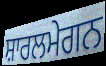
ਸ਼ਾਰਲਮੇਗਨ